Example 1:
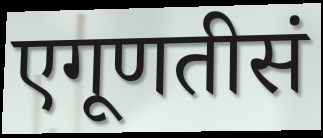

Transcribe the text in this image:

एगूणतीसं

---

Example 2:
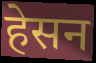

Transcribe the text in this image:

हेसन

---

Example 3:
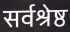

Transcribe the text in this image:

सर्वश्रेष्ठ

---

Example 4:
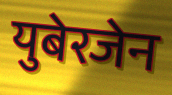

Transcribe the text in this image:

युबेरजेन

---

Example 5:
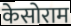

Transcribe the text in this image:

केसोराम